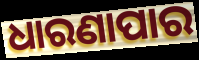
ଧାରଣାପାର